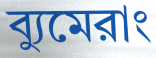
ব্যুমেরাং